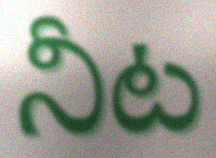
నీట